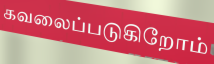
கவலைப்படுகிறோம்